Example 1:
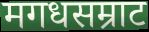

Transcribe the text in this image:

मगधसम्राट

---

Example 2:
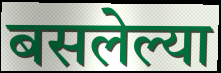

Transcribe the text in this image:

बसलेल्या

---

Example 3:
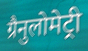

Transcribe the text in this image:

ग्रैनुलोमेट्री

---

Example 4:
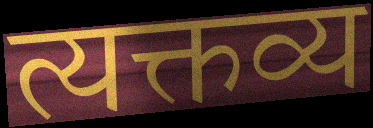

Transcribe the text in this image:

त्यक्तव्य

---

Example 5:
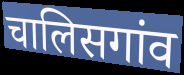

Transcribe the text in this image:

चालिसगांव